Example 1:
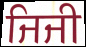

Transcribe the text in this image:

ਜਿਜੀ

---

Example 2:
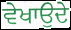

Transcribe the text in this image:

ਵੇਖਾਉਦੇ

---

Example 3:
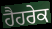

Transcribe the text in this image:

ਹੈਹਰੇਕ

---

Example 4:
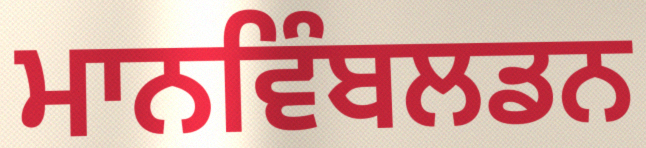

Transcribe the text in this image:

ਮਾਨਵਿੰਬਲਡਨ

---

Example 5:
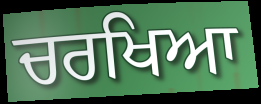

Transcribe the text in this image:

ਚਰਖਿਆ